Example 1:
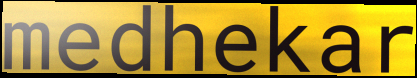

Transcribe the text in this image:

medhekar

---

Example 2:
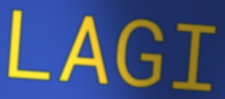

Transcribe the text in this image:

LAGI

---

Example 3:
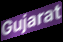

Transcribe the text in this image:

Gujarat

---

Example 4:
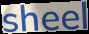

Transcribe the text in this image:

sheel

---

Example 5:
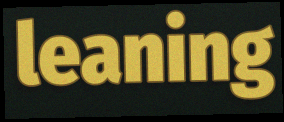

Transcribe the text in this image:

leaning